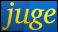
juge